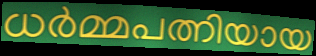
ധർമ്മപത്നിയായ